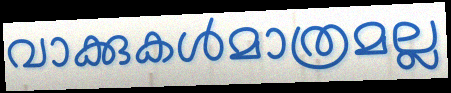
വാക്കുകൾമാത്രമല്ല